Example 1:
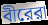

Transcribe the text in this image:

বীরেরা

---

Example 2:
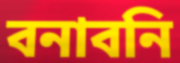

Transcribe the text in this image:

বনাবনি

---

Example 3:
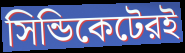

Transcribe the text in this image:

সিন্ডিকেটেরই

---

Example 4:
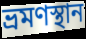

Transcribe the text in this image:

ভ্রমণস্থান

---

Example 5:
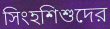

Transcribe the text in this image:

সিংহশিশুদের